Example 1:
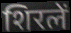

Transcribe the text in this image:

शिरलें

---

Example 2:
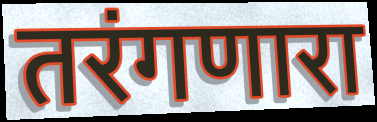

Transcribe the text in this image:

तरंगणारा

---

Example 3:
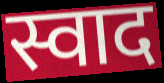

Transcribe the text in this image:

स्वाद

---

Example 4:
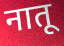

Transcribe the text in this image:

नातू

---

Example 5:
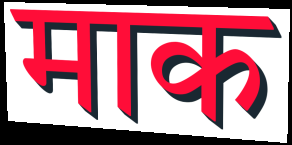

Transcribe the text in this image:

माक